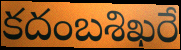
కదంబశిఖరే